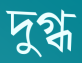
দুগ্ধ